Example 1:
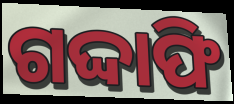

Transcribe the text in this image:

ଗଦ୍ଦାଫି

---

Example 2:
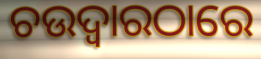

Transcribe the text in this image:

ଚଉଦ୍ଵାରଠାରେ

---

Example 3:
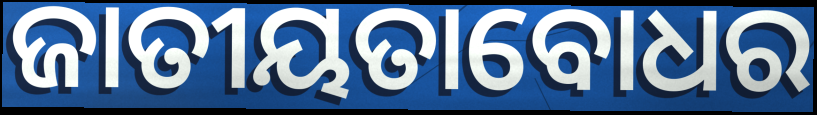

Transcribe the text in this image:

ଜାତୀୟତାବୋଧର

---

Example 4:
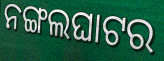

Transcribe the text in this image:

ନଙ୍ଗଲଘାଟର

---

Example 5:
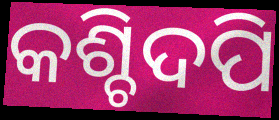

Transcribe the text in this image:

କଶ୍ଚିଦପି